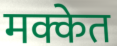
मक्केत